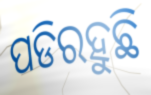
ପଡିରହୁଛି